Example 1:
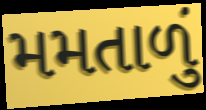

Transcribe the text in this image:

મમતાળું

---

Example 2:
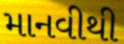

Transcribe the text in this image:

માનવીથી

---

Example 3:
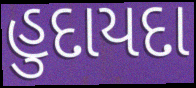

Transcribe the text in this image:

હુદાયદા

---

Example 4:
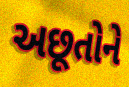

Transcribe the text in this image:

અછૂતોને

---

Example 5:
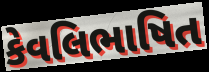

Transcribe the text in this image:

કેવલિભાષિત